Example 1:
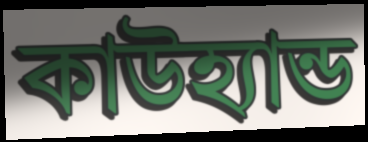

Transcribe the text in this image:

কাউহ্যান্ড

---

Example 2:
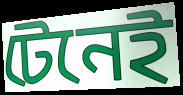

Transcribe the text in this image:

টেনেই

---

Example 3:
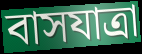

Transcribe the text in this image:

বাসযাত্রা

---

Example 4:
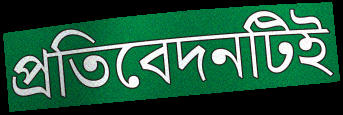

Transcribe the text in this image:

প্রতিবেদনটিই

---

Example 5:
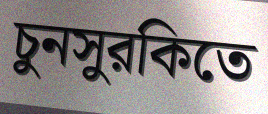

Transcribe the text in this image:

চুনসুরকিতে